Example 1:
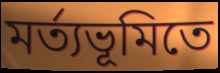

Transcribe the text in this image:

মর্ত্যভূমিতে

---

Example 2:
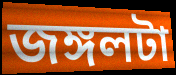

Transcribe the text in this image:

জঙ্গলটা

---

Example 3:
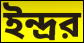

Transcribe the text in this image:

ইন্দ্রর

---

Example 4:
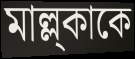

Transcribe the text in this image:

মাল্ল্কাকে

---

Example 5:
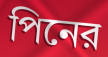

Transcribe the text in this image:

পিনের